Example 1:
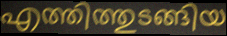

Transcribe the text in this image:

എത്തിത്തുടങ്ങിയ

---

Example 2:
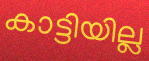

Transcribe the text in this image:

കാട്ടിയില്ല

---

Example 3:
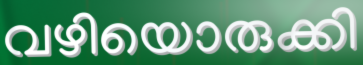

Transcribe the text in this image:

വഴിയൊരുക്കി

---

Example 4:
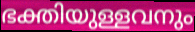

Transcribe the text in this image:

ഭക്തിയുള്ളവനും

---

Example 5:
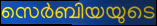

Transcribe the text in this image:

സെർബിയയുടെ